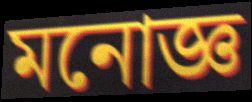
মনোজ্ঞ